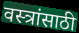
वस्त्रांसाठी